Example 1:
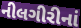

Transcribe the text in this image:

નીલગીરીનાં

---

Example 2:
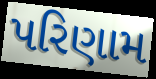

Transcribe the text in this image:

પરિણામ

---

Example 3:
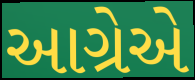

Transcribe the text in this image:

આગ્રેએ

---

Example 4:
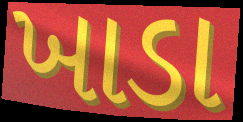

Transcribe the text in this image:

ખાડા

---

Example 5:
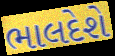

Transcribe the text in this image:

ભાલદેશે